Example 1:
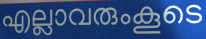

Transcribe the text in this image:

എല്ലാവരുംകൂടെ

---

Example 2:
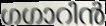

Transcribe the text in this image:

ഗഗാറിൻ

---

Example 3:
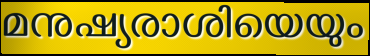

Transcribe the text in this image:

മനുഷ്യരാശിയെയും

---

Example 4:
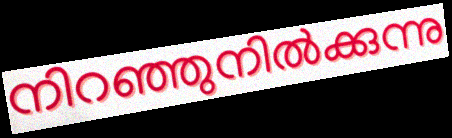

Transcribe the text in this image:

നിറഞ്ഞുനിൽക്കുന്നു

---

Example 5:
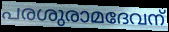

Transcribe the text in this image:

പരശുരാമദേവന്